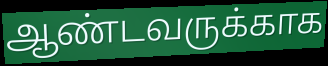
ஆண்டவருக்காக